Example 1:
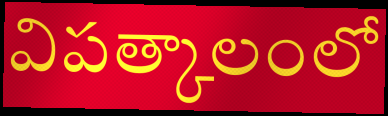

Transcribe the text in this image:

విపత్కాలంలో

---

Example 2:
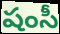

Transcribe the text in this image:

షంసీ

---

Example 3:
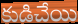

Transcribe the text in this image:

కుడిచేయి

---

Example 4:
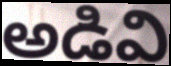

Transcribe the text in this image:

అడివి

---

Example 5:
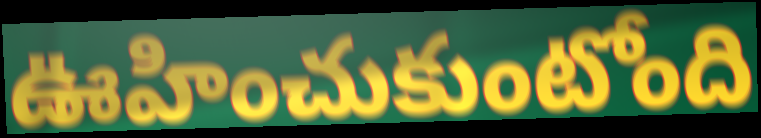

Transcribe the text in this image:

ఊహించుకుంటోంది